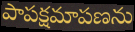
పాపక్షమాపణను